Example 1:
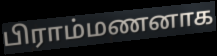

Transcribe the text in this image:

பிராம்மணனாக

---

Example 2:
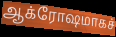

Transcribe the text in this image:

ஆக்ரோஷமாகச்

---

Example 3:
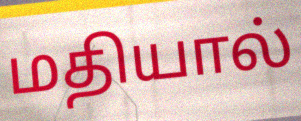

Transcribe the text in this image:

மதியால்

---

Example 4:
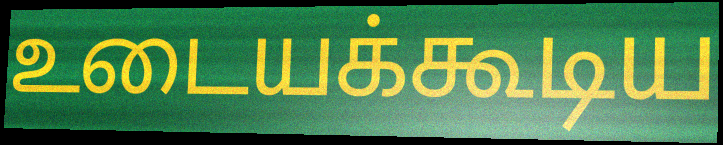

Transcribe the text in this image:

உடையக்கூடிய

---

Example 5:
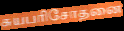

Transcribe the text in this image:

சுயபரிசோதனை